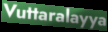
Vuttaralayya